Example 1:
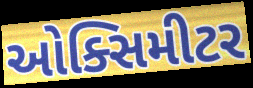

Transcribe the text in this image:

ઓક્સિમીટર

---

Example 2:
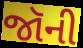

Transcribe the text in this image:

જૉની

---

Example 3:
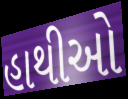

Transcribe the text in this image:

હાથીઓ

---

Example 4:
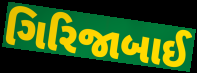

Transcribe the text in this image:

ગિરિજાબાઈ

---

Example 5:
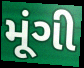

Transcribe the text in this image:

મૂંગી